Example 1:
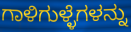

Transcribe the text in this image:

ಗಾಳಿಗುಳ್ಳೆಗಳನ್ನು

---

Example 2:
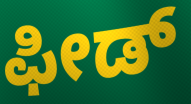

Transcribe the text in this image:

ಫೀಡ್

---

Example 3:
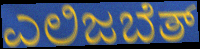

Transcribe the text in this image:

ಎಲಿಜಬೆತ್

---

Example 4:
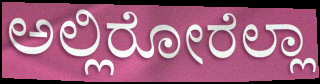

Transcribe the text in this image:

ಅಲ್ಲಿರೋರೆಲ್ಲಾ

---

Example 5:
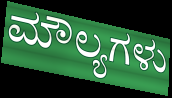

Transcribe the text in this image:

ಮೌಲ್ಯಗಳು